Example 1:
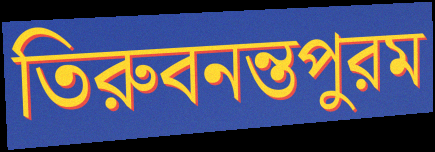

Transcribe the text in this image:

তিরুবনন্তপুরম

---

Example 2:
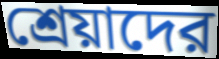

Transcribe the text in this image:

শ্রেয়াদের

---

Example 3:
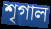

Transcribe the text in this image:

শৃগাল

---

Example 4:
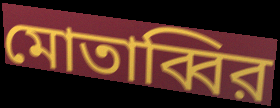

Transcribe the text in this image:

মোতাব্বির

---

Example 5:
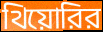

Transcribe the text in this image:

থিয়োরির